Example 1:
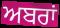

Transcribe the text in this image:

ਅਬਰਾਂ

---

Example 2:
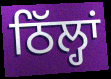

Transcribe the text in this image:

ਠਿੱਲ੍ਹਾਂ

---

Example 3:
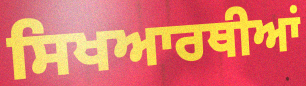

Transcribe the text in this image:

ਸਿਖਆਰਥੀਆਂ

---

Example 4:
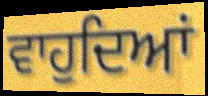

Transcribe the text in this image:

ਵਾਹੁਦਿਆਂ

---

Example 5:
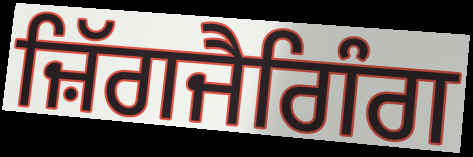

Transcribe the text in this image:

ਜ਼ਿੱਗਜੈਗਿੰਗ